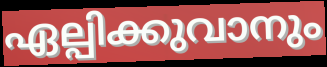
ഏല്പിക്കുവാനും